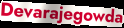
Devarajegowda